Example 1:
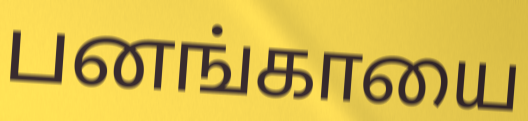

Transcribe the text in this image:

பனங்காயை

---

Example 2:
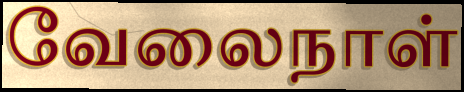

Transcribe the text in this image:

வேலைநாள்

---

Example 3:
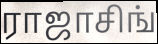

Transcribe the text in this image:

ராஜாசிங்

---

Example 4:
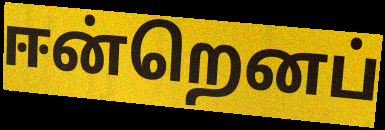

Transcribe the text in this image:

ஈன்றெனப்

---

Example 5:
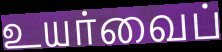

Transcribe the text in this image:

உயர்வைப்